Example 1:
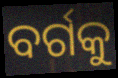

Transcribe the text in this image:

ବର୍ଗକୁ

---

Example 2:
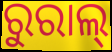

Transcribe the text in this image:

ରୁରାଲ୍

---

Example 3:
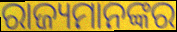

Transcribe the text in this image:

ରାଜ୍ୟମାନଙ୍କର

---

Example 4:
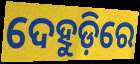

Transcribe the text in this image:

ଦେହୁଡ଼ିରେ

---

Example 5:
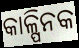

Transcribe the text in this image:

କାଳ୍ପିନକ